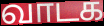
வாடக